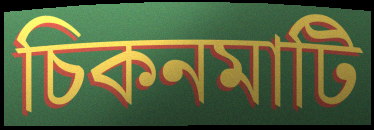
চিকনমাটি